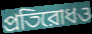
প্রতিরোধও